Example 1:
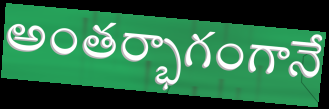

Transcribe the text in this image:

అంతర్భాగంగానే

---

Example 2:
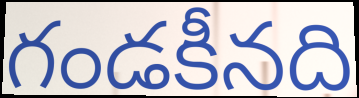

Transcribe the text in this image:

గండకీనది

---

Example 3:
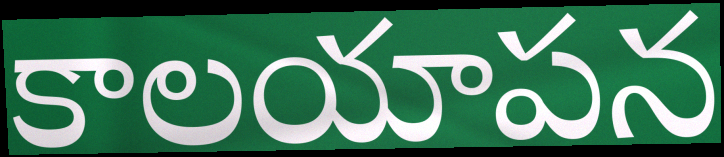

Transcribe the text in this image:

కాలయాపన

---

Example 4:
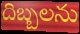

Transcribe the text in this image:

దిబ్బలను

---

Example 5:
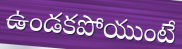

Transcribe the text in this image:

ఉండకపోయుంటే